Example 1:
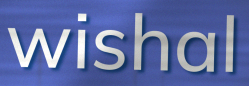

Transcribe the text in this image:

wishal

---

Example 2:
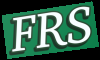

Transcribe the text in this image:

FRS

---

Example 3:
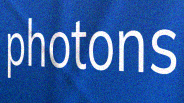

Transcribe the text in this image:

photons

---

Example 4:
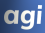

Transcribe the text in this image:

agi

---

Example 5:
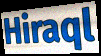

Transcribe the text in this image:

Hiraql